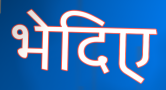
भेदिए